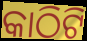
କାଠିଟି